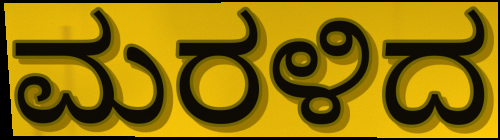
ಮರಳಿದ